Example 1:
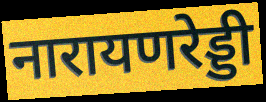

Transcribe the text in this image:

नारायणरेड्डी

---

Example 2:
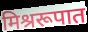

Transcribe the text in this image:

मिश्ररूपात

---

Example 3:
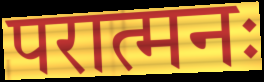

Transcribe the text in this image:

परात्मनः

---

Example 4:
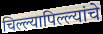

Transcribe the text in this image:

चिल्ल्यापिल्ल्यांचे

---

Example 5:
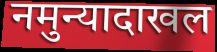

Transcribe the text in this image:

नमुन्यादाखल